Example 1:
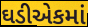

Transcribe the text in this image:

ઘડીએકમાં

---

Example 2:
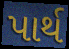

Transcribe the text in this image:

પાર્થ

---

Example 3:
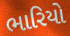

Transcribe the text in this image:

ભારિયો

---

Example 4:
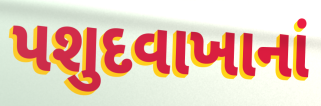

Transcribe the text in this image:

પશુદવાખાનાં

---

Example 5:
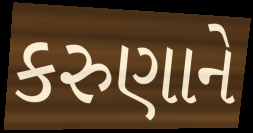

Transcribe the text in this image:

કરુણાને